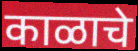
काळाचे